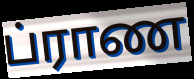
ப்ராண